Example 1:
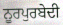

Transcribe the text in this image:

ਨੂਰਪੁਰਬੇਦੀ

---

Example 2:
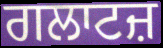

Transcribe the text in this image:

ਗਲਾਟਜ਼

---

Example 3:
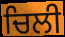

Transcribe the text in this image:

ਚਿਲੀ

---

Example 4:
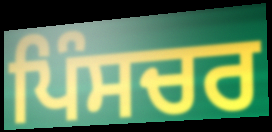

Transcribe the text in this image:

ਪਿੰਸਚਰ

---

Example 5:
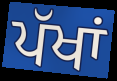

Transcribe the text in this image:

ਪੱਖਾਂ